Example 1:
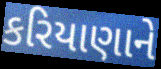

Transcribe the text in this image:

કરિયાણાને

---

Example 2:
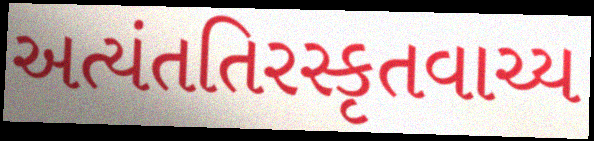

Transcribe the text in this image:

અત્યંતતિરસ્કૃતવાચ્ય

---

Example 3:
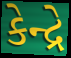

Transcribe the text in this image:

કેન્દ્રે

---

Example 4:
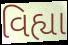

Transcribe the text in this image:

વિહ્યા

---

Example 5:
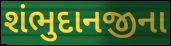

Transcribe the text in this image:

શંભુદાનજીના